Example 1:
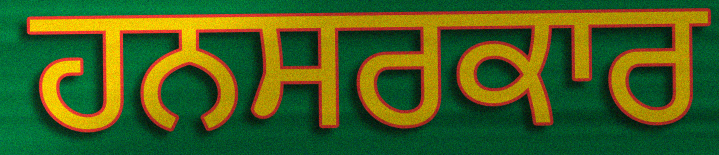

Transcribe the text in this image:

ਹਨਸਰਕਾਰ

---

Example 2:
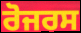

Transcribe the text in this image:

ਰੋਜਰਸ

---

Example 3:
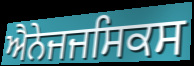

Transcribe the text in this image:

ਐਨੇਜਜਸਿਕਸ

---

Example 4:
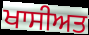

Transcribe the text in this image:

ਖਾਸੀਅਤ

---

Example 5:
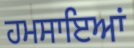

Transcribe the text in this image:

ਹਮਸਾਇਆਂ